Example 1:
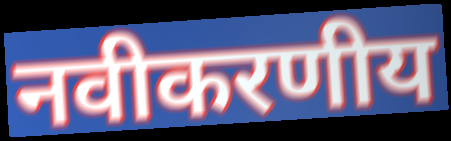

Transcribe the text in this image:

नवीकरणीय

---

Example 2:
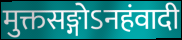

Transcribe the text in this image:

मुक्तसङ्गोऽनहंवादी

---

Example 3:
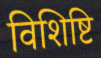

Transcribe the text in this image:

विशिष्टि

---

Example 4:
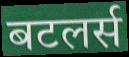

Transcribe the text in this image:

बटलर्स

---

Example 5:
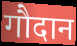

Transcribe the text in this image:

गौदान